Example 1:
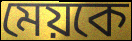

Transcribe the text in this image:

মেয়কে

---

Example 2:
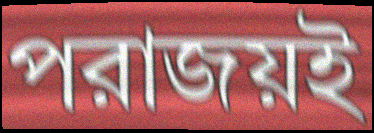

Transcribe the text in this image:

পরাজয়ই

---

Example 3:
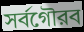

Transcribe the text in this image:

সর্বগৌরব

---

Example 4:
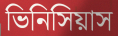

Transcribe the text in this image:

ভিনিসিয়াস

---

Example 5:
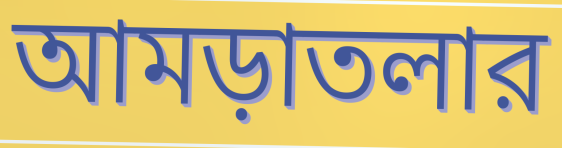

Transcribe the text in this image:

আমড়াতলার